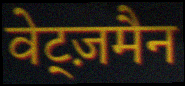
वेट्ज़मैन